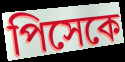
পিসেকে